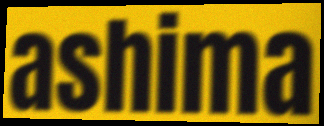
ashima